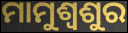
ମାମୁଶ୍ବଶୁର